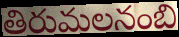
తిరుమలనంబి